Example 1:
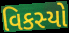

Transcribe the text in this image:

વિકસ્યો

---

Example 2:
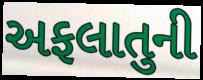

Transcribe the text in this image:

અફલાતુની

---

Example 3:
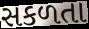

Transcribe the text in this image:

સકળતા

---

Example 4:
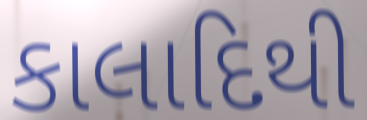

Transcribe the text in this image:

કાલાદિથી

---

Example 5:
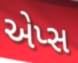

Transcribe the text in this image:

એપ્સ